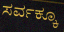
ಸರ್ವಕ್ಕೂ